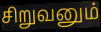
சிறுவனும்